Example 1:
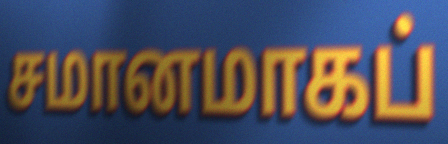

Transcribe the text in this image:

சமானமாகப்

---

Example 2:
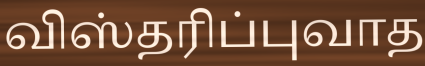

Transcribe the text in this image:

விஸ்தரிப்புவாத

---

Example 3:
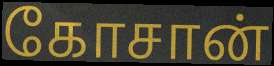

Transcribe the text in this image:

கோசான்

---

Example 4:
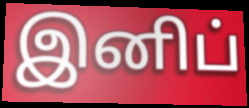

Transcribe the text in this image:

இனிப்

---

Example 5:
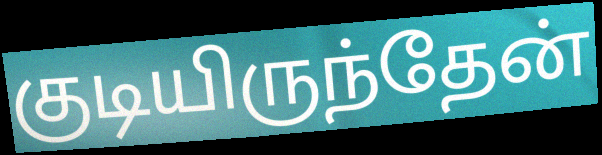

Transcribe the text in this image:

குடியிருந்தேன்